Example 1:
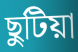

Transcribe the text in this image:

ছুটিয়া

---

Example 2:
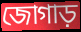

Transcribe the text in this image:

জোগাড়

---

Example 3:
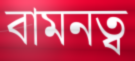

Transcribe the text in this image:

বামনত্ব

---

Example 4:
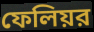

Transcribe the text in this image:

ফেলিয়র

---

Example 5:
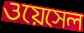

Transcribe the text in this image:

ওয়েসেল